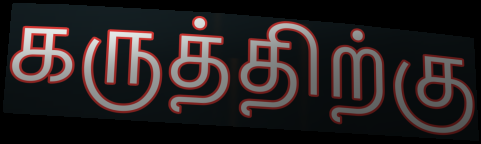
கருத்திற்கு